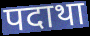
पदाथा